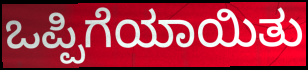
ಒಪ್ಪಿಗೆಯಾಯಿತು